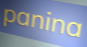
panina